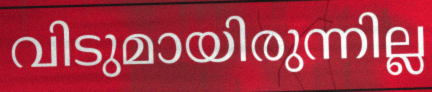
വിടുമായിരുന്നില്ല